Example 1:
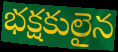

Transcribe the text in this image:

భక్షకులైన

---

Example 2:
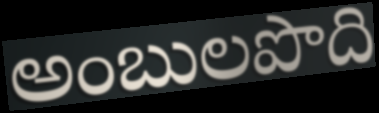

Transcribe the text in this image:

అంబులపొది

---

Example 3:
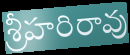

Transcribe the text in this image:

శ్రీహరిరావు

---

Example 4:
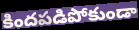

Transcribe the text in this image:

కిందపడిపోకుండా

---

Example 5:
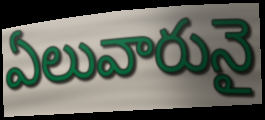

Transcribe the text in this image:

ఏలువారునై